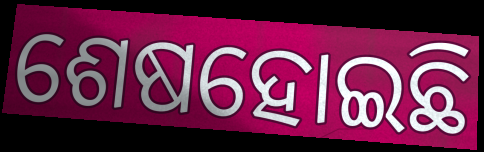
ଶେଷହୋଇଛି